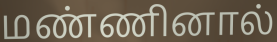
மண்ணினால்